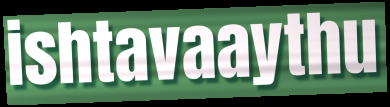
ishtavaaythu